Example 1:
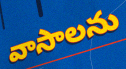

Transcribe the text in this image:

వాసాలను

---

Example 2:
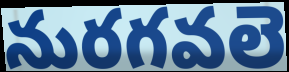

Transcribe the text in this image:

నురగవలె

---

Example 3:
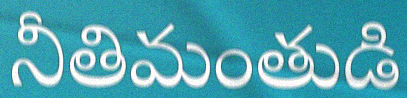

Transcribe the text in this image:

నీతిమంతుడి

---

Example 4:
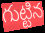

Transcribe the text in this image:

గుట్టిన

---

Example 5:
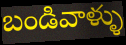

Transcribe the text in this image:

బండివాళ్ళు